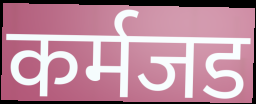
कर्मजड